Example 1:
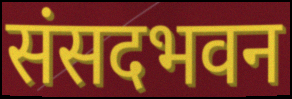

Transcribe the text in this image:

संसदभवन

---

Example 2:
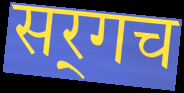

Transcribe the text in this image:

सर्गच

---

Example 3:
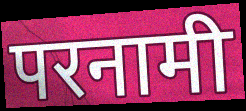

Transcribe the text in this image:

परनामी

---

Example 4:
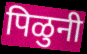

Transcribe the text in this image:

पिळुनी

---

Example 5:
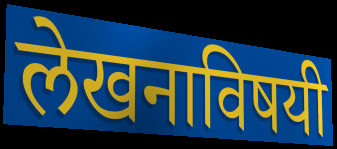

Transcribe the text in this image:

लेखनाविषयी